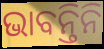
ଭାବନ୍ତିନି